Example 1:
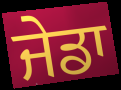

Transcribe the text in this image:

ਜੇਡਾ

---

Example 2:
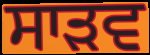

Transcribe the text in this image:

ਸਾੜਵ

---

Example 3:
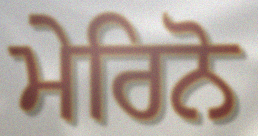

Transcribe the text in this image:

ਮੇਰਿਨੋ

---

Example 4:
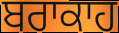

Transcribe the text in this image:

ਬਰਾਕਾਹ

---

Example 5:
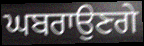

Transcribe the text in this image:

ਘਬਰਾਉਣਗੇ